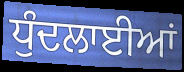
ਧੁੰਦਲਾਈਆਂ